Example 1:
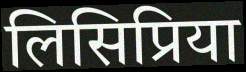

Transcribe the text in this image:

लिसिप्रिया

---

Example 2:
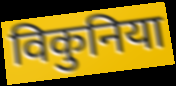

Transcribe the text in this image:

विकुनिया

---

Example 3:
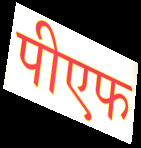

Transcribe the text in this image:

पीएफ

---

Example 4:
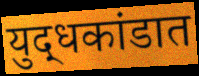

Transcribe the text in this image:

युद्धकांडात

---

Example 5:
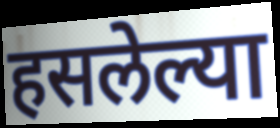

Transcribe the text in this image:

हसलेल्या